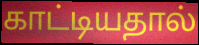
காட்டியதால்